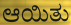
ಆಯಿತು